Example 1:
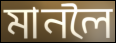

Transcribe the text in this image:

মানলৈ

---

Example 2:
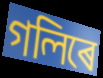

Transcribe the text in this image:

গলিৰে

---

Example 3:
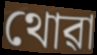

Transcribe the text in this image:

থোৱা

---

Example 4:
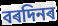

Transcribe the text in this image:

বৰদিনৰ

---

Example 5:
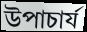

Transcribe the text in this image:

উপাচাৰ্য